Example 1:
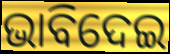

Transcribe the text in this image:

ଭାବିଦେଇ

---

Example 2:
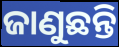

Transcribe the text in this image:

ଜାଣୁଛନ୍ତି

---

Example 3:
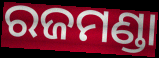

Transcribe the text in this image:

ରଜମଣ୍ଡା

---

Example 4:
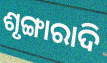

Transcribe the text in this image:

ଶୃଙ୍ଗାରାଦି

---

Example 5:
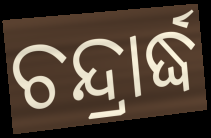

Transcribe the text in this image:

ଚନ୍ଦ୍ରାର୍ଦ୍ଧ